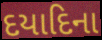
દયાદિના